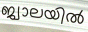
ജ്വാലയിൽ